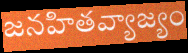
జనహితవ్యాజ్యం